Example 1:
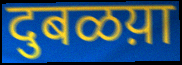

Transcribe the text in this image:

दुबळय़ा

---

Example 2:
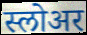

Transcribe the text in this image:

स्लोअर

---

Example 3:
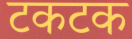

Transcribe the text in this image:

टकटक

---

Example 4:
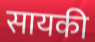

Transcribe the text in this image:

सायकी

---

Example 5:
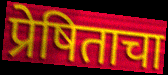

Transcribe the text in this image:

प्रेषिताचा